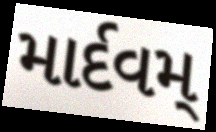
માર્દવમ્